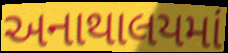
અનાથાલયમાં